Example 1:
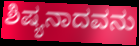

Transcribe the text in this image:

ಶಿಷ್ಯನಾದವನು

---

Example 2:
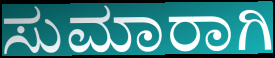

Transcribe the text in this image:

ಸುಮಾರಾಗಿ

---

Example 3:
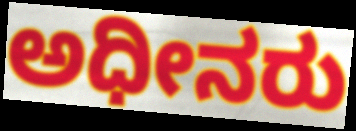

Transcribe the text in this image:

ಅಧೀನರು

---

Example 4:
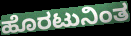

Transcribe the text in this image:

ಹೊರಟುನಿಂತ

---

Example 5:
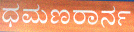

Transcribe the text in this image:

ಧಮಣರಾರ್ನ